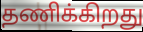
தணிக்கிறது